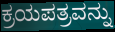
ಕ್ರಯಪತ್ರವನ್ನು